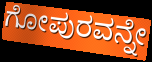
ಗೋಪುರವನ್ನೇ